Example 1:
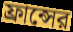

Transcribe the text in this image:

ফ্রান্সের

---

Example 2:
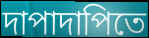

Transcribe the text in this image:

দাপাদাপিতে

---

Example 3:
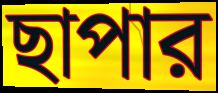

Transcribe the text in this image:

ছাপার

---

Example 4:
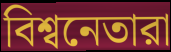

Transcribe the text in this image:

বিশ্বনেতারা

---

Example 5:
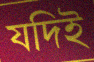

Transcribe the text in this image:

যদিই